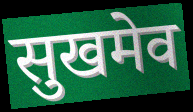
सुखमेव